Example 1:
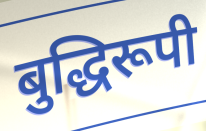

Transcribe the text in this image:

बुद्धिरूपी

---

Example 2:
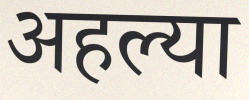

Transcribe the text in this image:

अहल्या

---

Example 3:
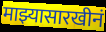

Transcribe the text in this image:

माझ्यासारखीनं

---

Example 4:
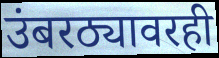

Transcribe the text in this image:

उंबरठ्यावरही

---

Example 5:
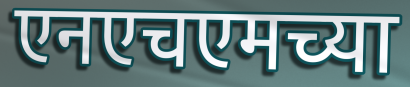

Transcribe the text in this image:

एनएचएमच्या